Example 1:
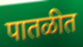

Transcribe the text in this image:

पातळीत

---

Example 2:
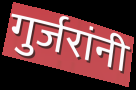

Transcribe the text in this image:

गुर्जरांनी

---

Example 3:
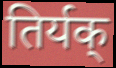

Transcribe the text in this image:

तिर्यक्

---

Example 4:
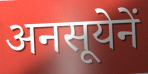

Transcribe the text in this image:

अनसूयेनें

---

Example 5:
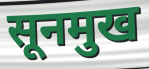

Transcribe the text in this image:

सूनमुख